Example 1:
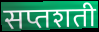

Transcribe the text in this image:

सप्तशती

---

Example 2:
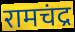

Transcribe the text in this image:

रामचंद्र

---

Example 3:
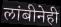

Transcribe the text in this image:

लांबीनेही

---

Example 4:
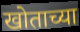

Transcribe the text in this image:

खोताच्या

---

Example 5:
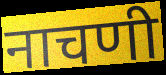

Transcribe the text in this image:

नाचणी